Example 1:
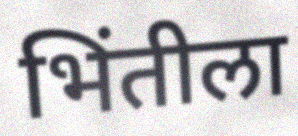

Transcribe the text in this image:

भिंतीला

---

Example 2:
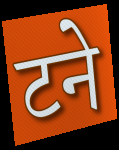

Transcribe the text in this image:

टने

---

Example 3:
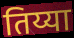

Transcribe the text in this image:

तिय्या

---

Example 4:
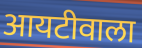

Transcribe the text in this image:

आयटीवाला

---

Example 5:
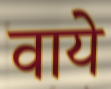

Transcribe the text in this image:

वाये